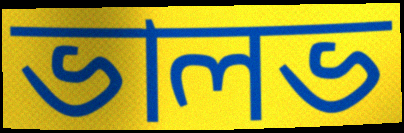
ভালভ